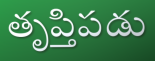
తృప్తిపడు